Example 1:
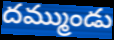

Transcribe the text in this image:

దమ్ముండు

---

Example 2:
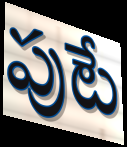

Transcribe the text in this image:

పుటే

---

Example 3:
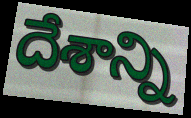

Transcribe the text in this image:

దేశాన్ని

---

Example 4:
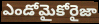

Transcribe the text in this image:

ఎండోమైకోరైజా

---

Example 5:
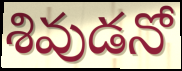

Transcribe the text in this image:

శివుడనో